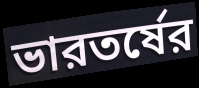
ভারতর্ষের